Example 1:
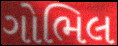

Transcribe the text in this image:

ગોભિલ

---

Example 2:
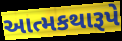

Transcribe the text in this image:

આત્મકથારૂપે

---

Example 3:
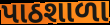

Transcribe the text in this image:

પાઠશાળા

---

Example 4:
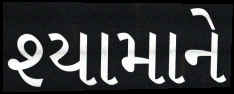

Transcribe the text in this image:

શ્યામાને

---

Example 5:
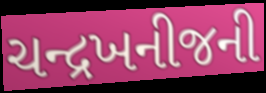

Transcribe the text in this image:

ચન્દ્રખનીજની